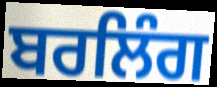
ਬਰਲਿੰਗ